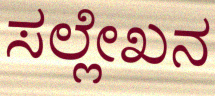
ಸಲ್ಲೇಖನ